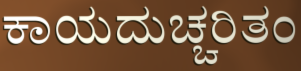
ಕಾಯದುಚ್ಚರಿತಂ